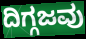
ದಿಗ್ಗಜವು